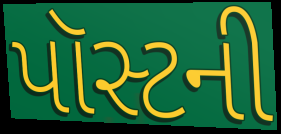
પૉસ્ટની